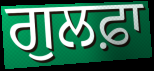
ਗੁਲਫ਼ਾ